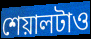
শেয়ালটাও